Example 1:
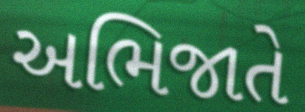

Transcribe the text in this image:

અભિજાતે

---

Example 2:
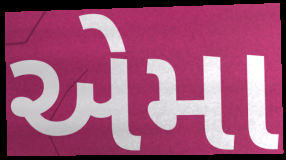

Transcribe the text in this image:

એમા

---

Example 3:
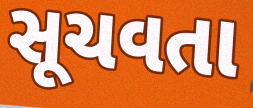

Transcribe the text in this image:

સૂચવતા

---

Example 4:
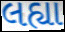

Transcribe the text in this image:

લહ્યા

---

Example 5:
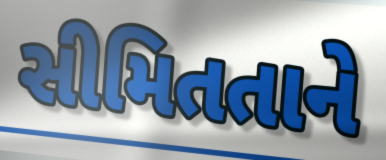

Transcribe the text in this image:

સીમિતતાને